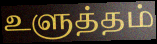
உளுத்தம்